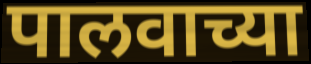
पालवाच्या